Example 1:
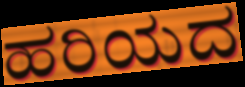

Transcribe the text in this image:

ಹರಿಯದ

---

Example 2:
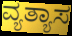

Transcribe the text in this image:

ವ್ಯತ್ಯಾಸ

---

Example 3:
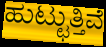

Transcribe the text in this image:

ಹುಟ್ಟುತ್ತಿವೆ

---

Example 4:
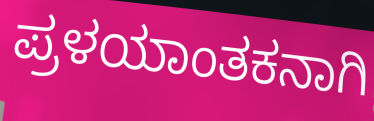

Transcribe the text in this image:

ಪ್ರಳಯಾಂತಕನಾಗಿ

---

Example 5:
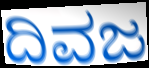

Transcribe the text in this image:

ದಿವಜ